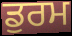
ਡੁਰਮ